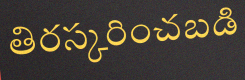
తిరస్కరించబడి